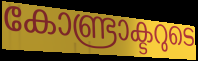
കോണ്ട്രാക്ടറുടെ